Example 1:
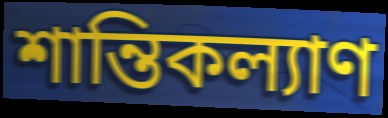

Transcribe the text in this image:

শান্তিকল্যাণ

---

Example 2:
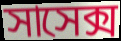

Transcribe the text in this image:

সাসেক্স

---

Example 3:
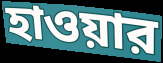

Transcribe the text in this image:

হাওয়ার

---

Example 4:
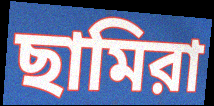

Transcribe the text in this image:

ছামিরা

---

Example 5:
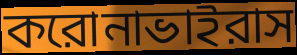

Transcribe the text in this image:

করোনাভাইরাস